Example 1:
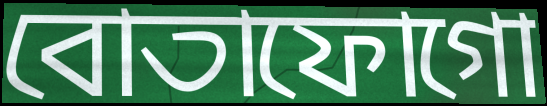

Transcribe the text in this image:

বোতাফোগো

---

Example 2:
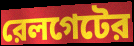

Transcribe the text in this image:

রেলগেটের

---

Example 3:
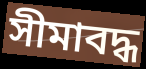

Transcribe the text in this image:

সীমাবদ্ধ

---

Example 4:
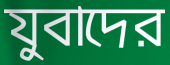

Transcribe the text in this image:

যুবাদের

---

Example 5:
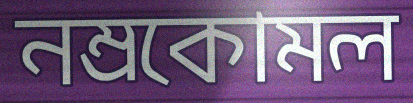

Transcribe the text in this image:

নম্রকোমল